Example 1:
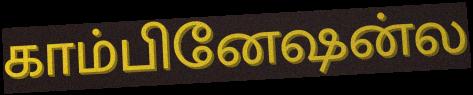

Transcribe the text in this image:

காம்பினேஷன்ல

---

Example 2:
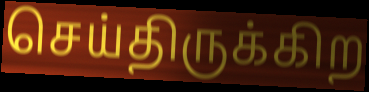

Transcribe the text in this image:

செய்திருக்கிற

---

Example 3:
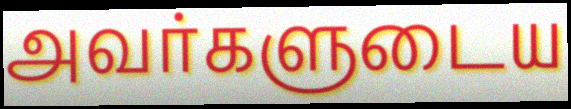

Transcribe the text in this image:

அவர்களுடைய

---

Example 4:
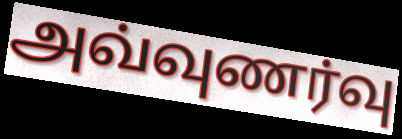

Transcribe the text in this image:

அவ்வுணர்வு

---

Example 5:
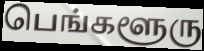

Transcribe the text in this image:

பெங்களூரு